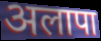
अलापा